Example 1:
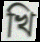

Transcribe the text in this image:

খি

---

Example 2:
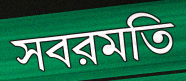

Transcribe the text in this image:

সবরমতি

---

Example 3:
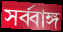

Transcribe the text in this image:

সর্ব্বাঙ্গ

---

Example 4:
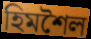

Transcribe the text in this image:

হিমশৈল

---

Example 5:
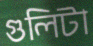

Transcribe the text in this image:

গুলিটা